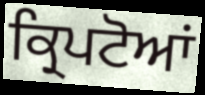
ਕ੍ਰਿਪਟੋਆਂ